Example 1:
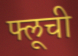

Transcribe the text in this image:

फ्लूची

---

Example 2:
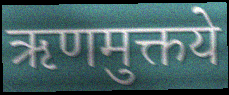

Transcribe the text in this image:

ऋणमुक्तये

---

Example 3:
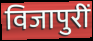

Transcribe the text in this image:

विजापुरीं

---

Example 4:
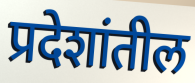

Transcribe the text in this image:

प्रदेशांतील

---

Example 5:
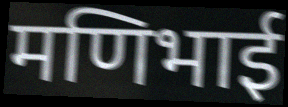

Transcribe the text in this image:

मणिभाई